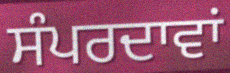
ਸੰਪਰਦਾਵਾਂ